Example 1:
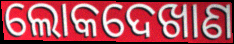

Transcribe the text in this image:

ଲୋକଦେଖାଣ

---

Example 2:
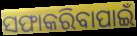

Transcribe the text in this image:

ସଫାକରିବାପାଇଁ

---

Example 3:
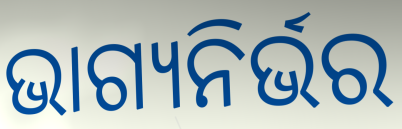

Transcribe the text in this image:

ଭାଗ୍ୟନିର୍ଭର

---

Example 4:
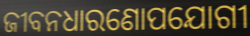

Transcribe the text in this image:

ଜୀବନଧାରଣୋପଯୋଗୀ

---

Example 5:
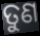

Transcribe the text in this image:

ତୁଣ